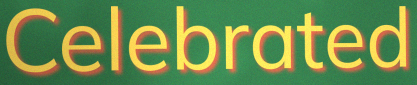
Celebrated